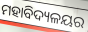
ମହାବିଦ୍ୟଳୟର